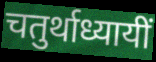
चतुर्थाध्यायीं